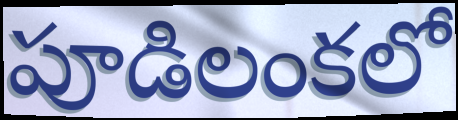
పూడిలంకలో